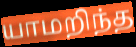
யாமறிந்த